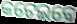
କଟେଇବେ